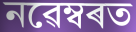
নৱেম্বৰত